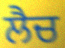
ਲੈਚ